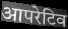
आपरेटिव